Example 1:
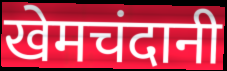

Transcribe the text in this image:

खेमचंदानी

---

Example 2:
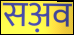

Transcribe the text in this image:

सअ़व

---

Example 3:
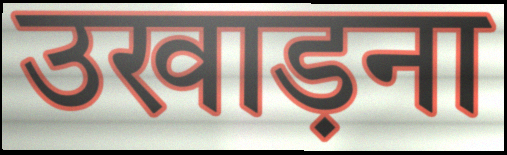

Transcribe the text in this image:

उखाड़ना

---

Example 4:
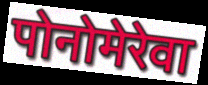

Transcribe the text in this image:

पोनोमेरेवा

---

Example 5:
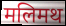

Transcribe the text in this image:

मलिमथ